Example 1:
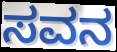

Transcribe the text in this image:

ಸವನ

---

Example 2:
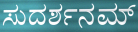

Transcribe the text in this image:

ಸುದರ್ಶನಮ್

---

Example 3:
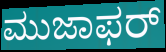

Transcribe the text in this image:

ಮುಜಾಫರ್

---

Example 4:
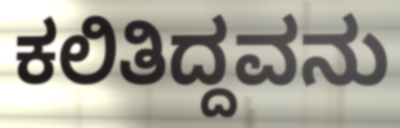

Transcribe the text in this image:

ಕಲಿತಿದ್ದವನು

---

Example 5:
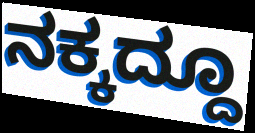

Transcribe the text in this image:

ನಕ್ಕದ್ದೂ